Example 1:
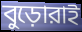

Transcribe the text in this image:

বুড়োরাই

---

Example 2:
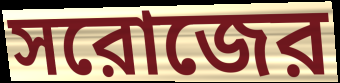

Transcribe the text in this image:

সরোজের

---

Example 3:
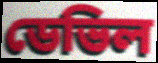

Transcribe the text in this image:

ডেভিল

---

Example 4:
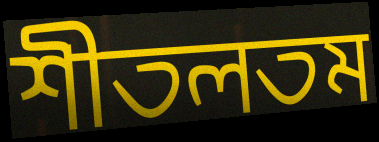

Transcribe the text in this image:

শীতলতম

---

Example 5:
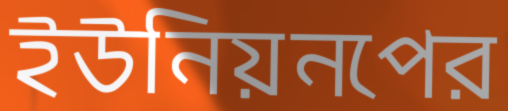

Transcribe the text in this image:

ইউনিয়নপের